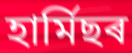
হাৰ্মিছৰ